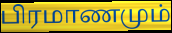
பிரமாணமும்